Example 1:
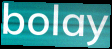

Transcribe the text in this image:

bolay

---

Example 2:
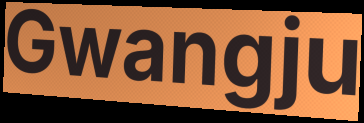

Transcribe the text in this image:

Gwangju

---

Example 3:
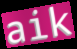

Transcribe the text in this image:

aik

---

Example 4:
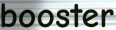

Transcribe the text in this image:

booster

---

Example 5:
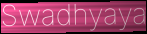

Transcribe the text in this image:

Swadhyaya